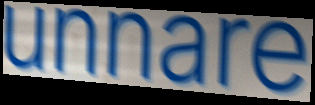
unnare